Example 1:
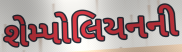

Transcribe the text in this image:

શેમ્પોલિયનની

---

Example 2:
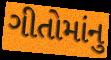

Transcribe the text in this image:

ગીતોમાંનુ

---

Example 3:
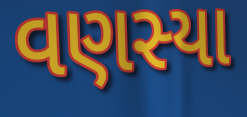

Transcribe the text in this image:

વણસ્યા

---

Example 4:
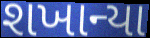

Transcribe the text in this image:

શખાન્યા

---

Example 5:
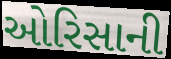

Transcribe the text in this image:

ઓરિસાની